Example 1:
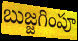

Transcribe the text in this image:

బుజ్జగింపూ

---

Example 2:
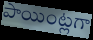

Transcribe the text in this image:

పాయింట్లగా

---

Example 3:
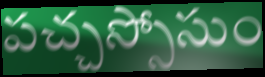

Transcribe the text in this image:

పచ్చస్సోసుం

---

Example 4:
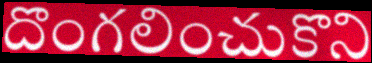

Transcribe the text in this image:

దొంగలించుకొని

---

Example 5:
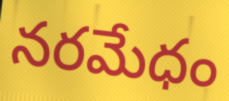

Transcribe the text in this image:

నరమేధం